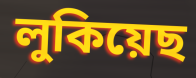
লুকিয়েছ